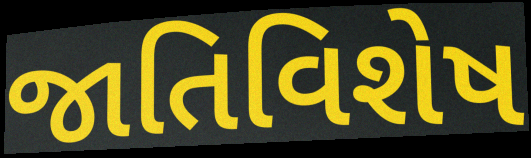
જાતિવિશેષ